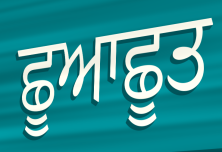
ਛੂਆਛੂਤ